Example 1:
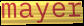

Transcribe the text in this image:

mayer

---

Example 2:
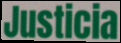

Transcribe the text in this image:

Justicia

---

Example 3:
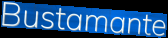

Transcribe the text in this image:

Bustamante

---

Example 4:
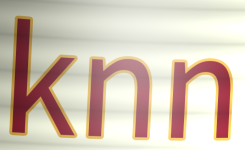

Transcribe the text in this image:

knn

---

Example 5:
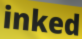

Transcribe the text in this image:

inked